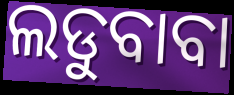
ଲଡୁବାବା